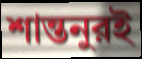
শান্তনুরই